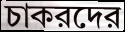
চাকরদের